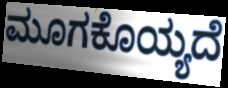
ಮೂಗಕೊಯ್ಯದೆ